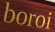
boroi